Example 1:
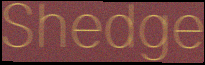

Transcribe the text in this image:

Shedge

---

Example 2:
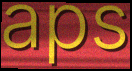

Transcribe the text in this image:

aps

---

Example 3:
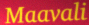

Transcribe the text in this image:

Maavali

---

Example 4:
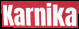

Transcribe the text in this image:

Karnika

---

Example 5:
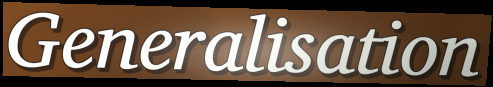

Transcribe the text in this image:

Generalisation